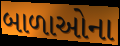
બાળાઓના